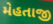
મેહતાજી